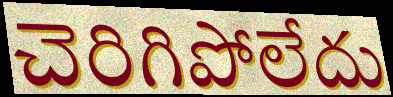
చెరిగిపోలేదు